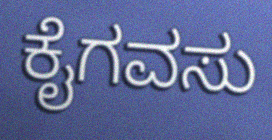
ಕೈಗವಸು